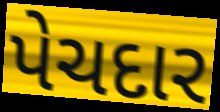
પેચદાર